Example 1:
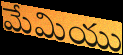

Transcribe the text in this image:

మేమియు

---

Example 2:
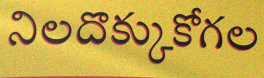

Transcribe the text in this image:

నిలదొక్కుకోగల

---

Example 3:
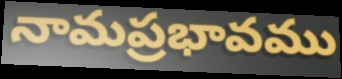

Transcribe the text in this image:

నామప్రభావము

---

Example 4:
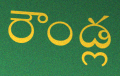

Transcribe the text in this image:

రౌండ్ల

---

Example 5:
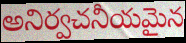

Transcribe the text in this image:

అనిర్వచనీయమైన